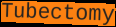
Tubectomy